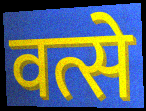
वत्से